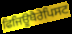
ਫਿਜਿਊਥੈਰੇਪਿਸਟ